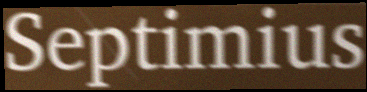
Septimius